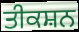
ਤੀਕਸ਼ਨ